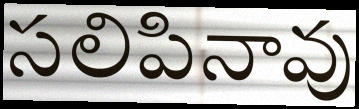
సలిపినావు